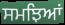
ਸਮਝਿਆਂ